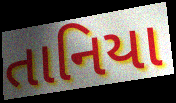
તાનિયા